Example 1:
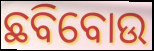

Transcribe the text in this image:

ଛବିବୋଉ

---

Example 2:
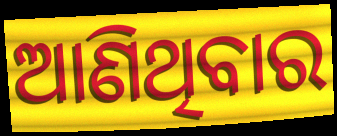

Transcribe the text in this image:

ଆଣିଥିବାର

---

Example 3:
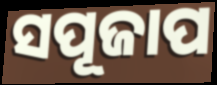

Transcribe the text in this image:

ସପୂଜାପ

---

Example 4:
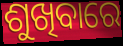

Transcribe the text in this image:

ଶୁଖିବାରେ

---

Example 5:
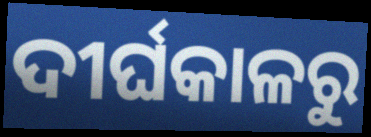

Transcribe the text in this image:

ଦୀର୍ଘକାଳରୁ